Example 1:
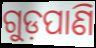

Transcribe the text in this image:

ଗୁଡ଼ପାଣି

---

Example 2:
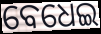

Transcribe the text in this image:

ବେଧେଇ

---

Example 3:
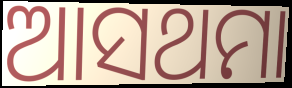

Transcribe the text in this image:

ଆସଥମା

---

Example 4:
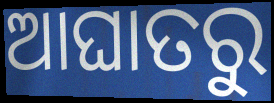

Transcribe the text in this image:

ଆଘାତରୁ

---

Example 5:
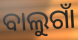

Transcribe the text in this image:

ବାଲୁଗାଁ